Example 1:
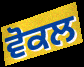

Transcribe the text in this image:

ਵੋਕਲ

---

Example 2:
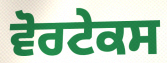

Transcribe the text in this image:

ਵੋਰਟੇਕਸ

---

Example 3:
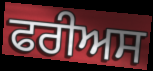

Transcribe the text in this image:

ਫਰੀਅਸ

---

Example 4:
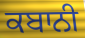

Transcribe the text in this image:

ਕਬਾਨੀ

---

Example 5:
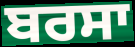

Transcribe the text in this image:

ਬਰਸਾ